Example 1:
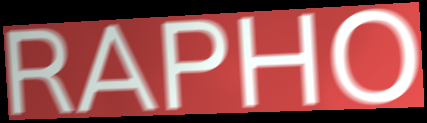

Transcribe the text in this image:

RAPHO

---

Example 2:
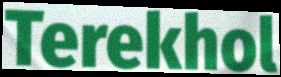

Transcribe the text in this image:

Terekhol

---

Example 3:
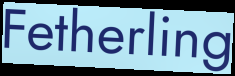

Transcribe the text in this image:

Fetherling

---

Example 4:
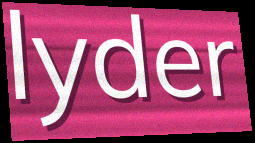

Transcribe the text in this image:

lyder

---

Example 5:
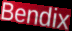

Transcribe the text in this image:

Bendix